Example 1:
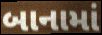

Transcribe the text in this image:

બાનામાં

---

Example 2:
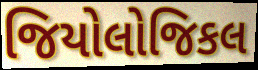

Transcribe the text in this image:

જિયોલોજિકલ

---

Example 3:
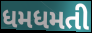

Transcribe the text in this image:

ધમધમતી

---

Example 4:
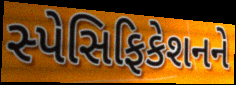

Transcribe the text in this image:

સ્પેસિફિકેશનને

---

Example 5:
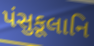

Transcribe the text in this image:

પંસુકૂલાનિ